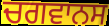
ਚਗਵਾਨਸ